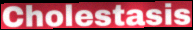
Cholestasis